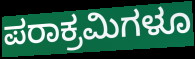
ಪರಾಕ್ರಮಿಗಳೂ